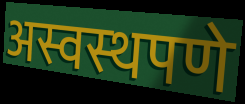
अस्वस्थपणे